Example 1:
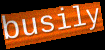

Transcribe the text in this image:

busily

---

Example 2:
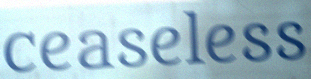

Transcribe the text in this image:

ceaseless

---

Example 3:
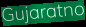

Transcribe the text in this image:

Gujaratno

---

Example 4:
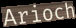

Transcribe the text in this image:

Arioch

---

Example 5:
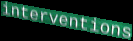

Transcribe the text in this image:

interventions